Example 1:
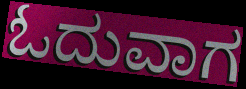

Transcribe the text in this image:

ಓದುವಾಗ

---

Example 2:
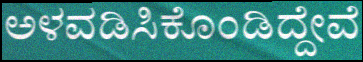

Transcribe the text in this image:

ಅಳವಡಿಸಿಕೊಂಡಿದ್ದೇವೆ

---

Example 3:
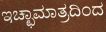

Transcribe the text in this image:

ಇಚ್ಛಾಮಾತ್ರದಿಂದ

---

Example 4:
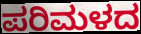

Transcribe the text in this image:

ಪರಿಮಳದ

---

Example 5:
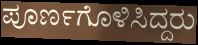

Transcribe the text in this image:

ಪೂರ್ಣಗೊಳಿಸಿದ್ದರು